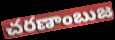
చరణాంబుజ